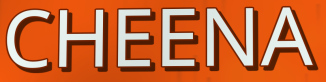
CHEENA